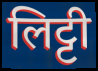
लिट्टी